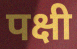
पक्षी